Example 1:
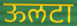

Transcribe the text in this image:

ऊलटा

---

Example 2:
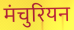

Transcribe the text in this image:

मंचुरियन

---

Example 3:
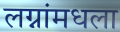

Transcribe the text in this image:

लग्नांमधला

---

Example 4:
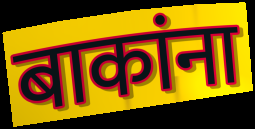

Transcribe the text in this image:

बाकांना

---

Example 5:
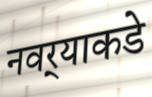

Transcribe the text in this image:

नवर्याकडे